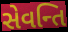
સેવન્તિ